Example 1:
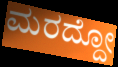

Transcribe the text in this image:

ಮರದ್ದೋ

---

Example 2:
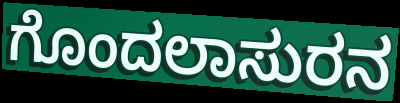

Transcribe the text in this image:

ಗೊಂದಲಾಸುರನ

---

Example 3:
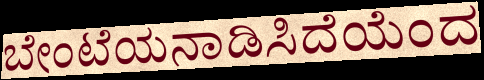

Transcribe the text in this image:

ಬೇಂಟೆಯನಾಡಿಸಿದೆಯೆಂದ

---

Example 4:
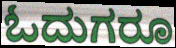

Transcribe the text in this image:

ಓದುಗರೂ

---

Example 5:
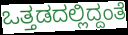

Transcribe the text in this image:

ಒತ್ತಡದಲ್ಲಿದ್ದಂತೆ